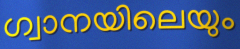
ഗ്വാനയിലെയും